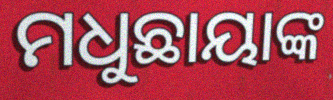
ମଧୁଛାୟାଙ୍କ